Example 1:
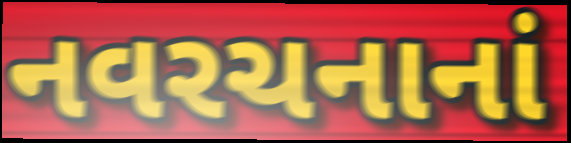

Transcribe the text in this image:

નવરચનાનાં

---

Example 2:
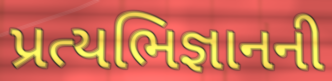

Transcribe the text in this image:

પ્રત્યભિજ્ઞાનની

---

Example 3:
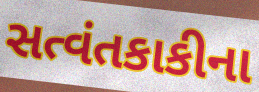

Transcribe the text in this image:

સત્વંતકાકીના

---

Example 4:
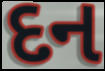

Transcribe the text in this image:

દન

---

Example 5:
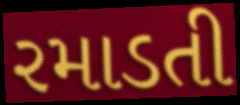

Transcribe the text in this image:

રમાડતી